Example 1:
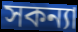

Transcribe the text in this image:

সকন্যা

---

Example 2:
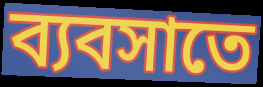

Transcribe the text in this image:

ব্যবসাতে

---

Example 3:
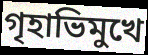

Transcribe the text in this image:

গৃহাভিমুখে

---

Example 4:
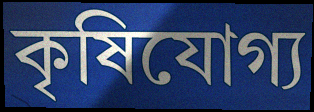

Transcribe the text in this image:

কৃষিযোগ্য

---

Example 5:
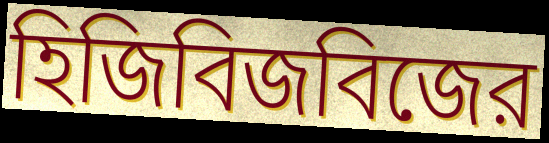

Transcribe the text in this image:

হিজিবিজবিজের